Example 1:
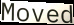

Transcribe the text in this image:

Moved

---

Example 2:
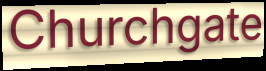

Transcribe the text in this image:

Churchgate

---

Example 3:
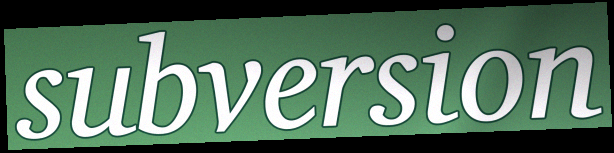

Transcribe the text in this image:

subversion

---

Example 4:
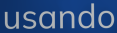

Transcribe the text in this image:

usando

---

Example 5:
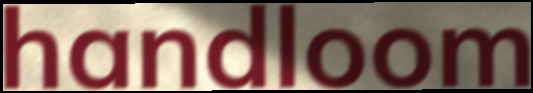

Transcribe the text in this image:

handloom